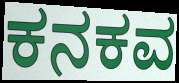
ಕನಕವ